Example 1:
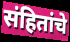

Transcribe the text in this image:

संहितांचे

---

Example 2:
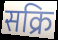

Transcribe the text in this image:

सक्रि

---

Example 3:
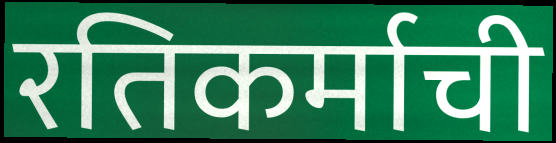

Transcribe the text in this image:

रतिकर्माची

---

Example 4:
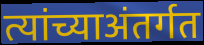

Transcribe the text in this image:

त्यांच्याअंतर्गत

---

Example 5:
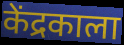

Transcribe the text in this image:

केंद्रकाला